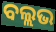
ବଲ୍ଲଭ